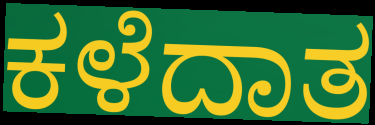
ಕಳೆದಾತ